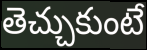
తెచ్చుకుంటే